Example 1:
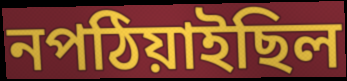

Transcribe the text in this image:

নপঠিয়াইছিল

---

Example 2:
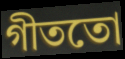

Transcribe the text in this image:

গীততো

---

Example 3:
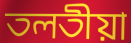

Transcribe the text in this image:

তলতীয়া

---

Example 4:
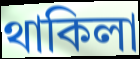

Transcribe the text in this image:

থাকিলা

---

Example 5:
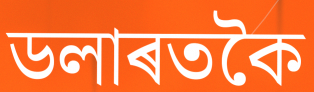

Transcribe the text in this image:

ডলাৰতকৈ